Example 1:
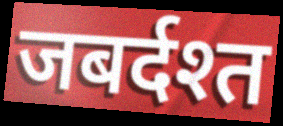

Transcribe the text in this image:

जबर्दश्त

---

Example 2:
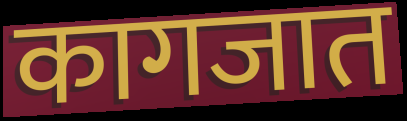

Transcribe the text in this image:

कागजात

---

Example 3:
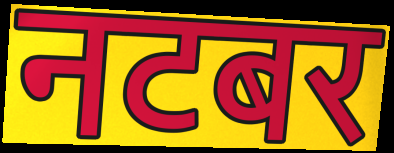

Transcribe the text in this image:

नटबर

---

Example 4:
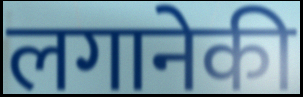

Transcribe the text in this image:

लगानेकी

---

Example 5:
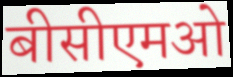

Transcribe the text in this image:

बीसीएमओ